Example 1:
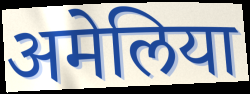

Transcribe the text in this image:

अमेलिया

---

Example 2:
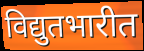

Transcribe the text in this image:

विद्युतभारीत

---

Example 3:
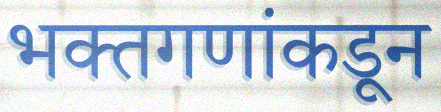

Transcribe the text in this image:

भक्तगणांकडून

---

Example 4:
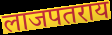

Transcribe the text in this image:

लाजपतराय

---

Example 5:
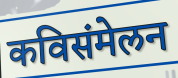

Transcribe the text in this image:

कविसंमेलन